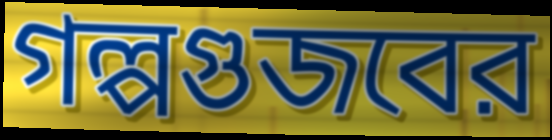
গল্পগুজবের